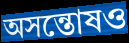
অসন্তোষও